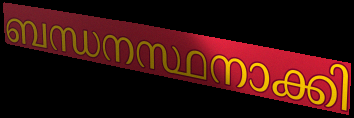
ബന്ധനസ്ഥനാക്കി